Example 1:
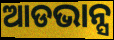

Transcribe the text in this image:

ଆଡଭାନ୍ସ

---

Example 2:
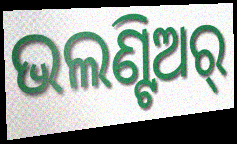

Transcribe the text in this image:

ଭଲଣ୍ଟିଅର୍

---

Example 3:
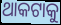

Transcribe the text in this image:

ଥାକଟାକୁ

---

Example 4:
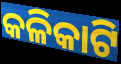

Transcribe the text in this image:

କଳିକାଟି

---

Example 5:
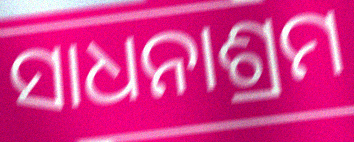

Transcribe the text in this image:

ସାଧନାଶ୍ରମ